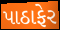
પાઠાફેર